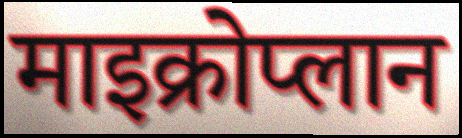
माइक्रोप्लान